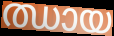
ഝായ